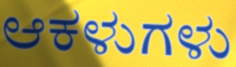
ಆಕಳುಗಳು